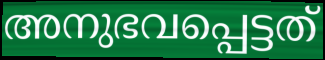
അനുഭവപ്പെട്ടത്